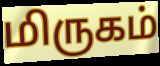
மிருகம்